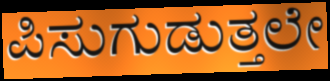
ಪಿಸುಗುಡುತ್ತಲೇ